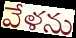
వేళను